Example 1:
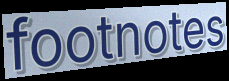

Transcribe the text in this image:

footnotes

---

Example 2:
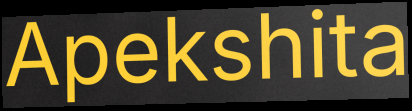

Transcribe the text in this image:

Apekshita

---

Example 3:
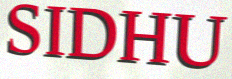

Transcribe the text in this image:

SIDHU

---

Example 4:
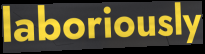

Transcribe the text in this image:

laboriously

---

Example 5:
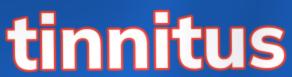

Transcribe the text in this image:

tinnitus